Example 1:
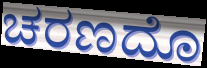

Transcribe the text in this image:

ಚರಣದೊ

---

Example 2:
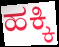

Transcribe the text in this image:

ಹಕ್ಕಿ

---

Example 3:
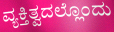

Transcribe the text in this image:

ವ್ಯಕ್ತಿತ್ವದಲ್ಲೊಂದು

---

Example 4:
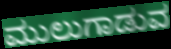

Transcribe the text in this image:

ಮುಲುಗಾಡುವ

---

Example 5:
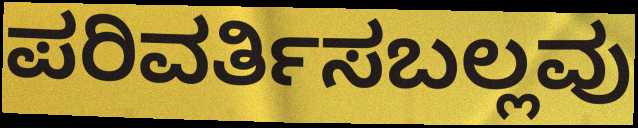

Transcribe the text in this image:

ಪರಿವರ್ತಿಸಬಲ್ಲವು